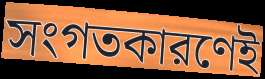
সংগতকারণেই